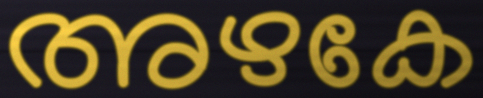
അഴകേ